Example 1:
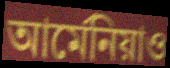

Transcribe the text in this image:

আর্মেনিয়াও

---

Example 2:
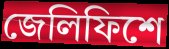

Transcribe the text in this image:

জেলিফিশে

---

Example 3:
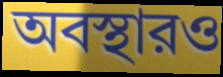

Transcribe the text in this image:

অবস্থারও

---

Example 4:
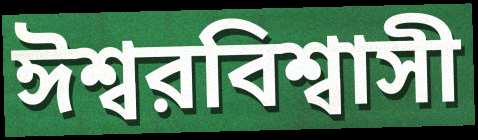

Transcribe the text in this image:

ঈশ্বরবিশ্বাসী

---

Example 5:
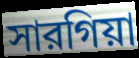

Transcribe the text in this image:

সারগিয়া